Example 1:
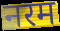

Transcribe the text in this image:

नरम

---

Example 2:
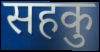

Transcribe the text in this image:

सहकु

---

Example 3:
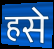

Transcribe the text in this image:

हसे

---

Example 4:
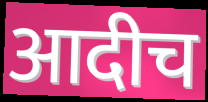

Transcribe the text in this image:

आदीच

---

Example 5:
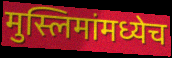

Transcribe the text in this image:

मुस्लिमांमध्येच